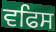
ਵਫਿਸ